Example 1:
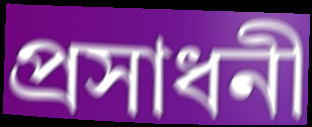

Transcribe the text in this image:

প্রসাধনী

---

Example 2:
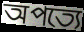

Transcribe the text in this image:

অপত্যে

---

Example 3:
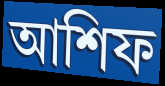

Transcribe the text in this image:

আশিফ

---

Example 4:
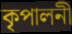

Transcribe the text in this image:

কৃপালনী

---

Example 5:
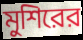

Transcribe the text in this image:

মুশিরের